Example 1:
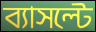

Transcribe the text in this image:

ব্যাসল্টে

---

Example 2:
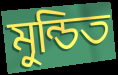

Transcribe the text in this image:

মুন্ডিত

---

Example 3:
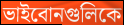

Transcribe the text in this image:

ভাইবোনগুলিকে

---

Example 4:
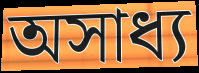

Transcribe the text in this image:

অসাধ্য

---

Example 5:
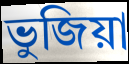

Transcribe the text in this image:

ভুজিয়া